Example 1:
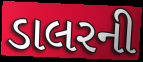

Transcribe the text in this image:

ડાલરની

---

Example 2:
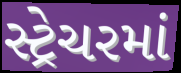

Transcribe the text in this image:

સ્ટ્રેચરમાં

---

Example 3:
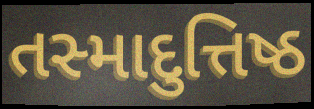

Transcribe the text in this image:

તસ્માદુત્તિષ્ઠ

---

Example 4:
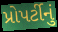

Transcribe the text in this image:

પ્રોપર્ટીનું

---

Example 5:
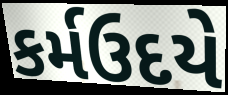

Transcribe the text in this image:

કર્મઉદયે